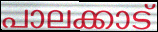
പാലക്കാട്